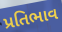
પ્રતિભાવ